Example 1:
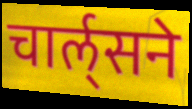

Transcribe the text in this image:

चार्ल्सने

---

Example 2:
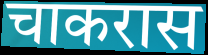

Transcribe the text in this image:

चाकरास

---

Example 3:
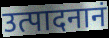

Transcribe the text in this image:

उत्पादनानं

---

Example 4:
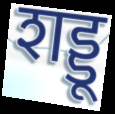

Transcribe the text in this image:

शड्डू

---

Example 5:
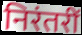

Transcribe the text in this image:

निरंतरीं